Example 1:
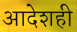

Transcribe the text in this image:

आदेशही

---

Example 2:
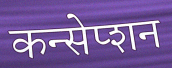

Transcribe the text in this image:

कन्सेप्शन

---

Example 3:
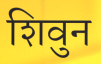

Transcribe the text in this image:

शिवुन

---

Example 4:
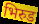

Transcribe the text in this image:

भिरुड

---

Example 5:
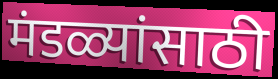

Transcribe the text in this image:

मंडळ्यांसाठी